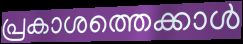
പ്രകാശത്തെക്കാൾ